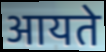
आयते